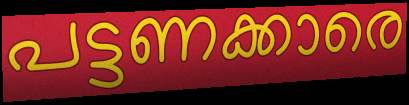
പട്ടണക്കാരെ